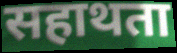
सहाथता